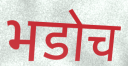
भडोच